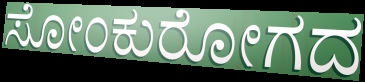
ಸೋಂಕುರೋಗದ